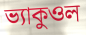
ভ্যাকুওল